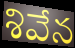
శివేన